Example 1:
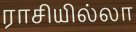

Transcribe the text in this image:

ராசியில்லா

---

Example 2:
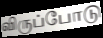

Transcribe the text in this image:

விருப்போடு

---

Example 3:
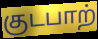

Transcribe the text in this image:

குடபாற்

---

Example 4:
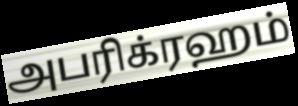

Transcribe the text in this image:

அபரிக்ரஹம்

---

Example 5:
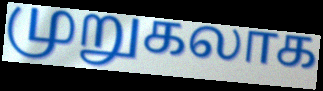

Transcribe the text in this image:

முறுகலாக